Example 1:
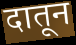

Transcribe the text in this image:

दातून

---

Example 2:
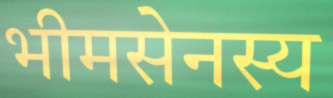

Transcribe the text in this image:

भीमसेनस्य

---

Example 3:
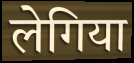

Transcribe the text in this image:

लेगिया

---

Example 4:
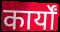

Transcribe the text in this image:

कार्यों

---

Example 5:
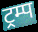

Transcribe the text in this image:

ट्रम्प